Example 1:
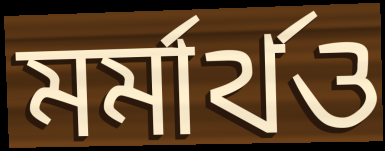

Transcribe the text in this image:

মর্মার্থও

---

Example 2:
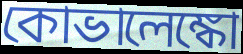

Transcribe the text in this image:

কোভালেঙ্কো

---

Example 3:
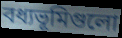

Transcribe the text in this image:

বধ্যভূমিগুলো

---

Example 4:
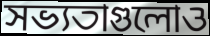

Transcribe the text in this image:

সভ্যতাগুলোও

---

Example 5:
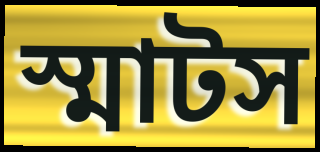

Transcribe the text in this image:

স্মাটস